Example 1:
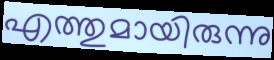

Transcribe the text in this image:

എത്തുമായിരുന്നു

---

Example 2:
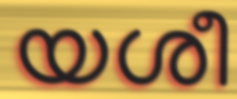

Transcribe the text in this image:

യശീ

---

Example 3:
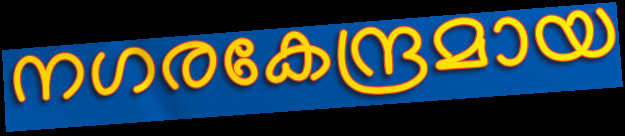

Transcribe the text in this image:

നഗരകേന്ദ്രമായ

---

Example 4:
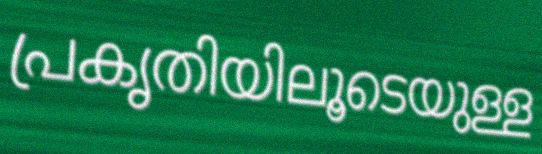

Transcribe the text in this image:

പ്രകൃതിയിലൂടെയുള്ള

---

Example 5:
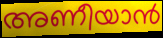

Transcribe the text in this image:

അണീയാൻ